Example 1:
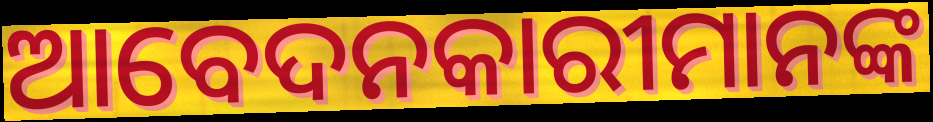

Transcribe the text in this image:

ଆବେଦନକାରୀମାନଙ୍କ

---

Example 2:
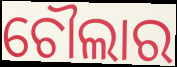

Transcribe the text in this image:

ଚୌଲାର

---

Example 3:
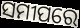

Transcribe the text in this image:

ସମୀପରେ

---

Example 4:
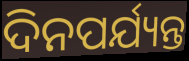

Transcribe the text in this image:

ଦିନପର୍ଯ୍ୟନ୍ତ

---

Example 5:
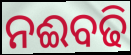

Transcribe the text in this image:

ନଈବଢି